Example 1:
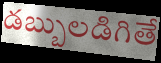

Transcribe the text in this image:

డబ్బులడిగితే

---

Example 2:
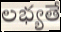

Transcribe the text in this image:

లభ్యతే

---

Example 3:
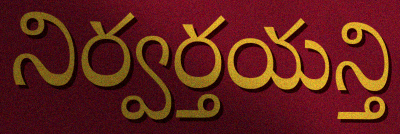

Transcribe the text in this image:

నిర్వర్తయన్తి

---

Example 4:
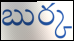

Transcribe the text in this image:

బుర్క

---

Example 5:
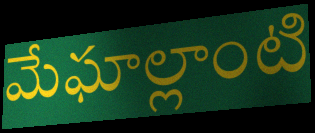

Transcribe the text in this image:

మేఘాల్లాంటి